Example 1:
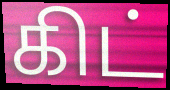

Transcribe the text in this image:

கிட்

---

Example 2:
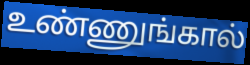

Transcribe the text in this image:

உண்ணுங்கால்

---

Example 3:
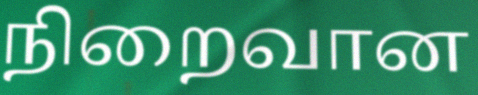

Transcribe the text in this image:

நிறைவான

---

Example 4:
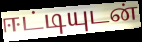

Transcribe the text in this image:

ஈட்டியுடன்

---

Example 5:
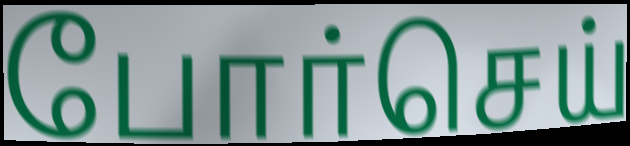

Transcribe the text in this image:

போர்செய்